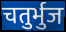
चतुर्भुज